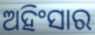
ଅହିଂସାର